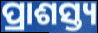
ପ୍ରାଶସ୍ତ୍ୟ